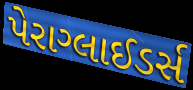
પેરાગ્લાઈડર્સ